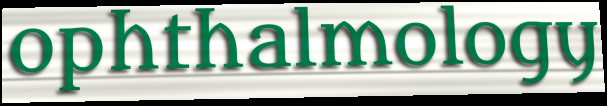
ophthalmology